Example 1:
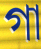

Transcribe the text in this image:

গা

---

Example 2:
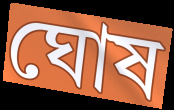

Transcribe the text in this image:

ঘোষ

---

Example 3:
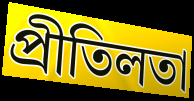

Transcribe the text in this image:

প্ৰীতিলতা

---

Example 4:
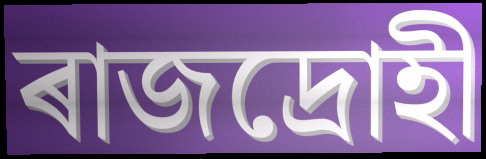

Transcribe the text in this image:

ৰাজদ্ৰোহী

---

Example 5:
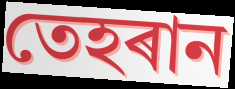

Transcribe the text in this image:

তেহৰান